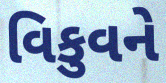
વિકુવને